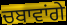
ਚਬਾਵਾਂਗੇ